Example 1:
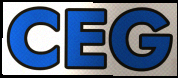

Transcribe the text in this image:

CEG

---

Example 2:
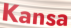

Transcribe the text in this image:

Kansa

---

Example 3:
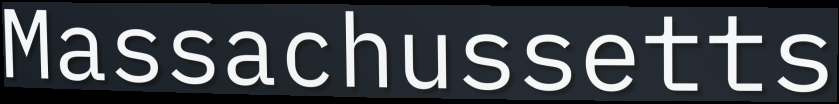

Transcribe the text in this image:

Massachussetts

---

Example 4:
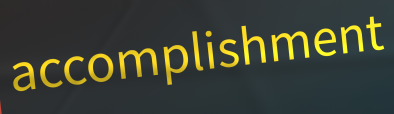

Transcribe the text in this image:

accomplishment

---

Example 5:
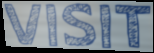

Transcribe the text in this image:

VISIT